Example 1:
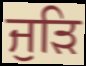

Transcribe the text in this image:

ਜੁੜਿ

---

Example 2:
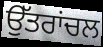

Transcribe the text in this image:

ਉੱਤਰਾਂਚਲ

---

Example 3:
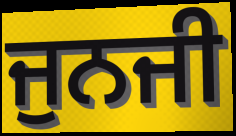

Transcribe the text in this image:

ਜੁਨਜੀ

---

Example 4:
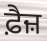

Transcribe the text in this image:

ਫ਼ੈਜ਼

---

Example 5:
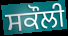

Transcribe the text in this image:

ਸਕੌਲੀ